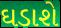
ઘડાશે